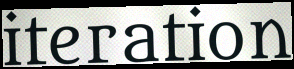
iteration